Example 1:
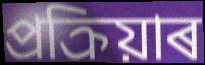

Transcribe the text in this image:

প্ৰক্ৰিয়াৰ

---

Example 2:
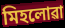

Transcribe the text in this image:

মিহলোৱা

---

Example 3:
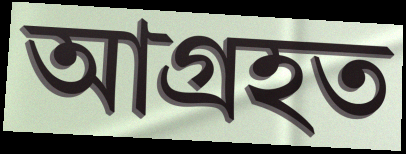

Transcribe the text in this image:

আগ্ৰহত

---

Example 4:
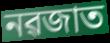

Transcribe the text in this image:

নৱজাত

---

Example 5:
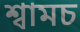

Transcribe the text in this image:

শ্বামচ